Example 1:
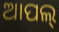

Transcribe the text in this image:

ଆପଲ୍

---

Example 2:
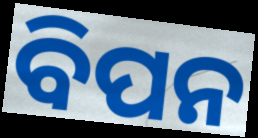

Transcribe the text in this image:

ବିପନ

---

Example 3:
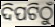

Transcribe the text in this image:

ଦିପଟିଠୁଁ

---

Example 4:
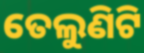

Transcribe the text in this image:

ତେଲୁଣିଟି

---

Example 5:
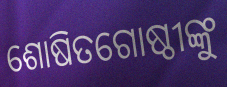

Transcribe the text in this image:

ଶୋଷିତଗୋଷ୍ଠୀଙ୍କୁ